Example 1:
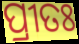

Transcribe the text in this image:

ପ୍ରୀତଃ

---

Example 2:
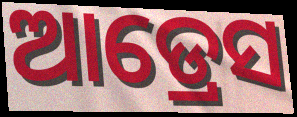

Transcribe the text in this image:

ଆଡ୍ରେସ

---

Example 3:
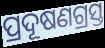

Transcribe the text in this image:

ପ୍ରଦୂଷଣଗ୍ରସ୍ତ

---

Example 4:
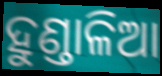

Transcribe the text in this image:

ହୁଣ୍ଡାଳିଆ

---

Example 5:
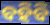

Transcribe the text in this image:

ବହିବି